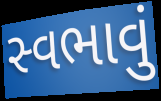
સ્વભાવું